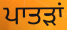
ਪਾਤੜਾਂ